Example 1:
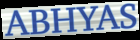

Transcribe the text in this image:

ABHYAS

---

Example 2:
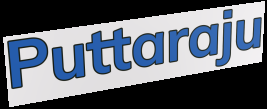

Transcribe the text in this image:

Puttaraju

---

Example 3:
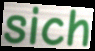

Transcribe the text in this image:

sich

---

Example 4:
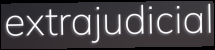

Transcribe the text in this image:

extrajudicial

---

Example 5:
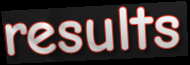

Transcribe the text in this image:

results